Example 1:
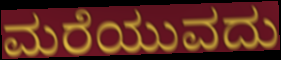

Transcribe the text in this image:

ಮರೆಯುವದು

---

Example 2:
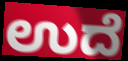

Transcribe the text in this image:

ಉದೆ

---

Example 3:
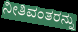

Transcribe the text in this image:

ನೀತಿವಂತರನ್ನು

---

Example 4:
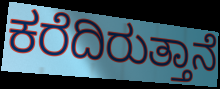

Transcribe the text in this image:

ಕರೆದಿರುತ್ತಾನೆ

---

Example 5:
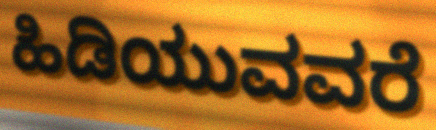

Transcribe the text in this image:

ಹಿಡಿಯುವವರೆ